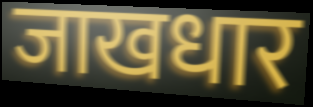
जाखधार